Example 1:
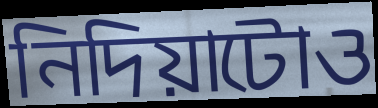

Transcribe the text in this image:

নিদিয়াটোও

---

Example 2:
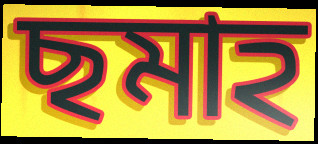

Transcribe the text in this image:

ছমাহ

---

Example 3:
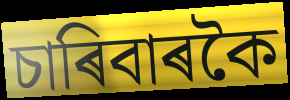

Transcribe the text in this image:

চাৰিবাৰকৈ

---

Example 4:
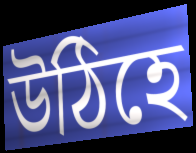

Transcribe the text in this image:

উঠিহে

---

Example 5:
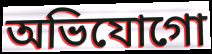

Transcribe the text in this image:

অভিযোগো